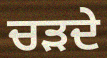
ਚੜਦੇ